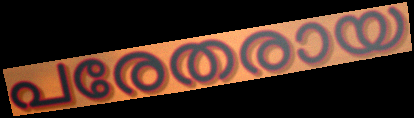
പരേതരായ